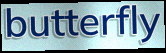
butterfly